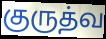
குருத்வ